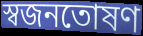
স্বজনতোষণ